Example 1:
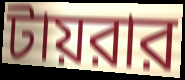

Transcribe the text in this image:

টায়রার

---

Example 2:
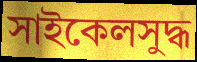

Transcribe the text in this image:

সাইকেলসুদ্ধ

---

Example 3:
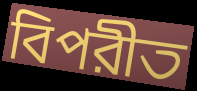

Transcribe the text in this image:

বিপরীত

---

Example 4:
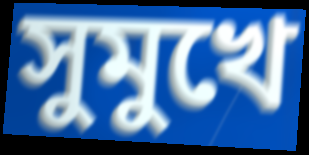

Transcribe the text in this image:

সুমুখে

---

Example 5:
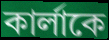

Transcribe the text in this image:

কার্লাকে